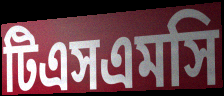
টিএসএমসি